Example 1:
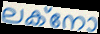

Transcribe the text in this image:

ലക്നോ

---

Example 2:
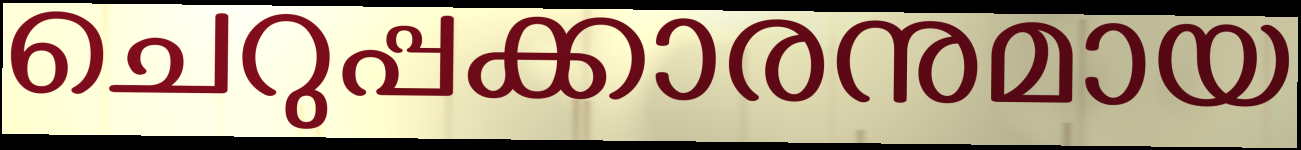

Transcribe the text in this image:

ചെറുപ്പക്കാരനുമായ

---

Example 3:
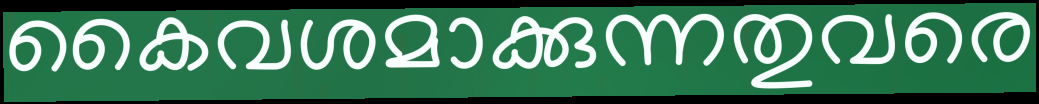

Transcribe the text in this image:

കൈവശമാക്കുന്നതുവരെ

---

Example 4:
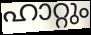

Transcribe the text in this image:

ഹാറ്റും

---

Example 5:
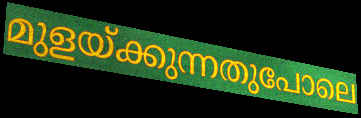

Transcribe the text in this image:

മുളയ്ക്കുന്നതുപോലെ